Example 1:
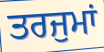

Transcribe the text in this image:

ਤਰਜੁਮਾਂ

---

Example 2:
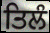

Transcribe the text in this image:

ਤਿਲੰ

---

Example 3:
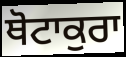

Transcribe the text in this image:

ਥੋਟਾਕੁਰਾ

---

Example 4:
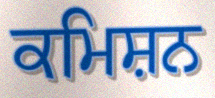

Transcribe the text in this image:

ਕਮਿਸ਼ਨ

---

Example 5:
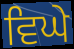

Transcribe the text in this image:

ਵਿਘੇ